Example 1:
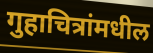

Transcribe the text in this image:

गुहाचित्रांमधील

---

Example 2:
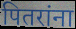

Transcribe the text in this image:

पितरांना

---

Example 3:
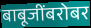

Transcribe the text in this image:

बाबूजींबरोबर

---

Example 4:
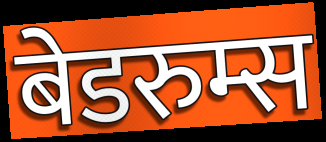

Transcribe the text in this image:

बेडरुम्स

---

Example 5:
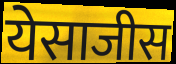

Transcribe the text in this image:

येसाजीस